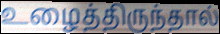
உழைத்திருந்தால்